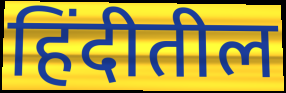
हिंदीतील